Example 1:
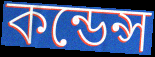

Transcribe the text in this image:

কন্ডেন্স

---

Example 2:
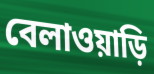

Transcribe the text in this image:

বেলাওয়াড়ি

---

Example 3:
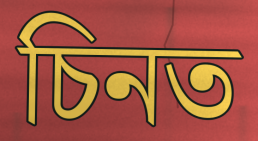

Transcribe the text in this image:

চিনত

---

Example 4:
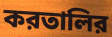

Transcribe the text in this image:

করতালির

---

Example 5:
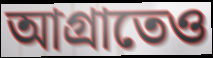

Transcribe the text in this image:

আগ্রাতেও